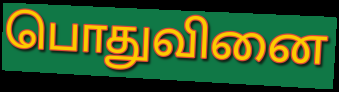
பொதுவினை